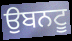
ਉਬਨਟੂ